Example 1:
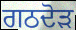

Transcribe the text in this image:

ਗਠਦੋੜ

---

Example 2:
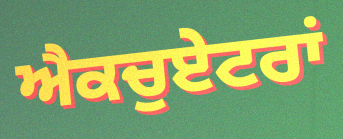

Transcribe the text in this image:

ਐਕਚੁਏਟਰਾਂ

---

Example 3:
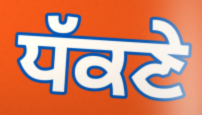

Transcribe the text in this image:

ਧੱਕਣੇ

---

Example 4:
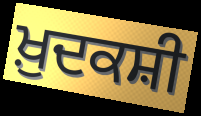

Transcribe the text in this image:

ਖ਼ੁਦਕਸ਼ੀ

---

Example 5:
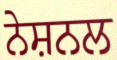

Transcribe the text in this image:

ਨੇਸ਼ਨਲ